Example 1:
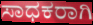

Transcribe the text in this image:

ಸಾಧಕರಾಗಿ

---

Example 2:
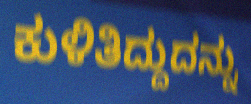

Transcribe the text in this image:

ಕುಳಿತಿದ್ದುದನ್ನು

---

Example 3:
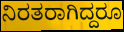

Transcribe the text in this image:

ನಿರತರಾಗಿದ್ದರೂ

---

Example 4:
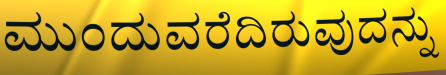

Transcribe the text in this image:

ಮುಂದುವರೆದಿರುವುದನ್ನು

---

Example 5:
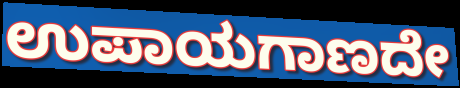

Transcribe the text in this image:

ಉಪಾಯಗಾಣದೇ